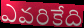
ఎవరికేది